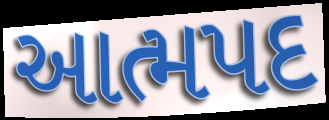
આત્મપદ